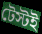
টেস্টই